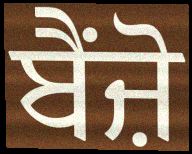
ਬੈਂਜ਼ੋ